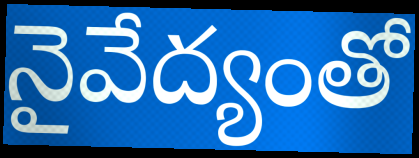
నైవేద్యంతో